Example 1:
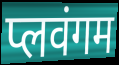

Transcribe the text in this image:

प्लवंगम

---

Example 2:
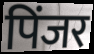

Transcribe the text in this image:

पिंजर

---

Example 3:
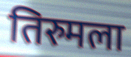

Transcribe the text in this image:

तिरुमला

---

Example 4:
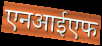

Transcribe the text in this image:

एनआईएफ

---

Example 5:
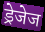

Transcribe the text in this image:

ड्रेजेज